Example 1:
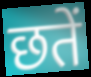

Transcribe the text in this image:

छतें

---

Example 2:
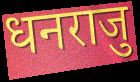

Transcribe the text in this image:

धनराजु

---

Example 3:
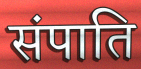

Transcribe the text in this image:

संपाति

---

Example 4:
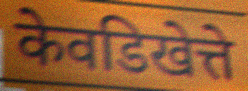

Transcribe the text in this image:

केवडिखेत्ते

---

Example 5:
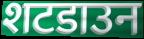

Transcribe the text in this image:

शटडाउन